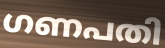
ഗണപതി